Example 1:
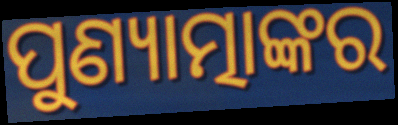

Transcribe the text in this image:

ପୁଣ୍ୟାତ୍ମାଙ୍କର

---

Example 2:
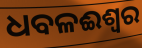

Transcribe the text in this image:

ଧବଳଈଶ୍ବର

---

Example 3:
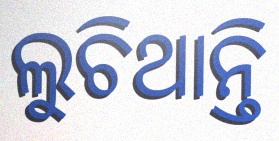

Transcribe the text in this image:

ଲୁଚିଥାନ୍ତି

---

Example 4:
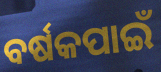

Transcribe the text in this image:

ବର୍ଷକପାଇଁ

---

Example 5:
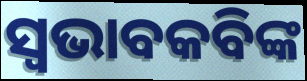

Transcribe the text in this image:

ସ୍ଵଭାବକବିଙ୍କ